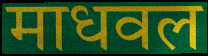
माधवल